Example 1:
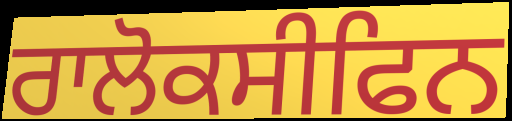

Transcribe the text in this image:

ਰਾਲੋਕਸੀਫਿਨ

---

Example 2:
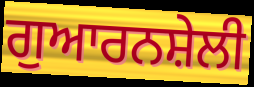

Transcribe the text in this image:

ਗੁਆਰਨਸ਼ੇਲੀ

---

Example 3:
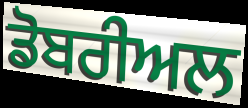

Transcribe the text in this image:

ਡੋਬਰੀਅਲ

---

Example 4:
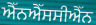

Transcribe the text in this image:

ਐੱਨਐੱਸਸੀਐੱਨ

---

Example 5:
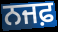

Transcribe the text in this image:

ਨਜਫ਼